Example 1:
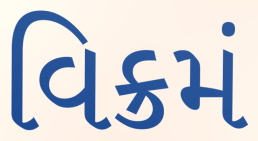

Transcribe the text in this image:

વિક્રમં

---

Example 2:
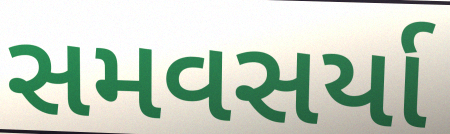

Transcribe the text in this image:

સમવસર્યા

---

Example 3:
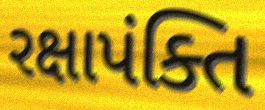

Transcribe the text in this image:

રક્ષાપંક્તિ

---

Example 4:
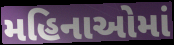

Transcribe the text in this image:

મહિનાઓમાં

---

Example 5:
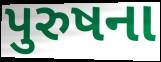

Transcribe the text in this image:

પુરુષના